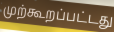
முற்கூறப்பட்டது